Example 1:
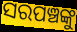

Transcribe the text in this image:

ସରପଞ୍ଚଙ୍କୁ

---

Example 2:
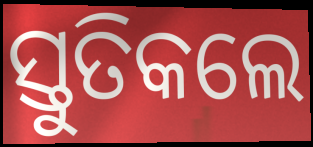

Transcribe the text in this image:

ସ୍ତୁତିକଲେ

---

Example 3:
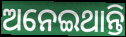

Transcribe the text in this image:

ଅନେଇଥାନ୍ତି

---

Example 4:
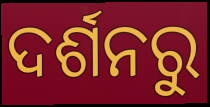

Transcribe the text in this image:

ଦର୍ଶନରୁ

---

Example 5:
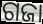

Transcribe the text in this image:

ଗଜା